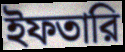
ইফতারি